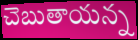
చెబుతాయన్న